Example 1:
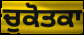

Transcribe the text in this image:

ਚੁਕੋਤਕਾ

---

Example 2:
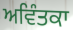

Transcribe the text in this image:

ਅਵਿੰਤਕਾ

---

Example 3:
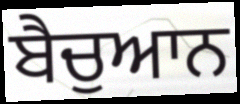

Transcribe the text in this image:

ਬੈਚੁਆਨ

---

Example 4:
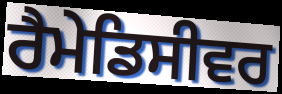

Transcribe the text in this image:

ਰੈਮੇਡਿਸੀਵਰ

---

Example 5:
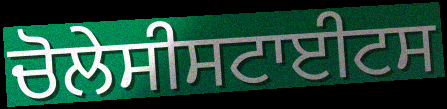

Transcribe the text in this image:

ਚੋਲੇਸੀਸਟਾਈਟਸ